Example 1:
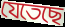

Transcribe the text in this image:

যেতেছে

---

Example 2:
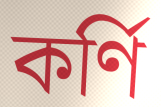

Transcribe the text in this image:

কর্ণি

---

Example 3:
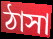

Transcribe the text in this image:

ঠাসা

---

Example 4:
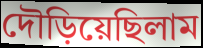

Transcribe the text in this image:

দৌড়িয়েছিলাম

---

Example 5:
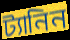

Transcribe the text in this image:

ট্যানিন